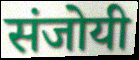
संजोयी